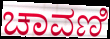
ಚಾವಣಿ